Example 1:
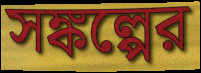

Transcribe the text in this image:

সঙ্কল্পের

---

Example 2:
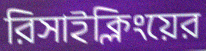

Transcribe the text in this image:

রিসাইক্লিংয়ের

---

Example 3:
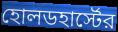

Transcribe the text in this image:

হোলডহার্স্টের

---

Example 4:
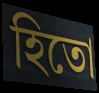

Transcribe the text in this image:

হিতো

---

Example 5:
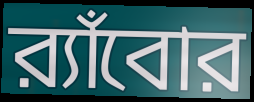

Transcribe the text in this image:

র‍্যাঁবোর